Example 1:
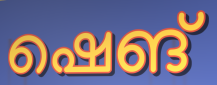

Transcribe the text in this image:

ഷെങ്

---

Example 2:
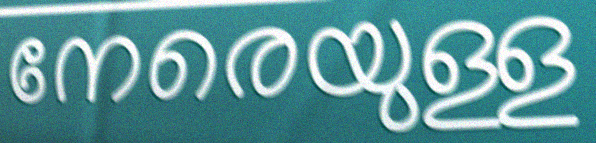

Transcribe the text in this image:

നേരെയുള്ള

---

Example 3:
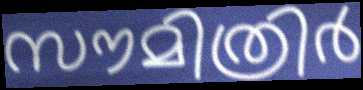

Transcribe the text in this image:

സൗമിത്രിർ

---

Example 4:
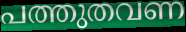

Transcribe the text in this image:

പത്തുതവണ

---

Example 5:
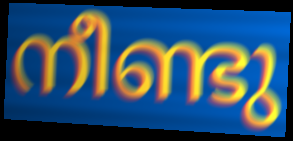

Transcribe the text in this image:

നീണ്ടു